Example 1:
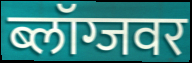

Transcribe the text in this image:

ब्लॉग्जवर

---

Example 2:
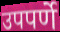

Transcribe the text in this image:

उपपर्णे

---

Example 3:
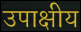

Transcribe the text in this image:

उपाक्षीय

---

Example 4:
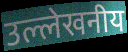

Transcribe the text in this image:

उल्लेखनीय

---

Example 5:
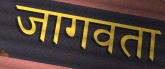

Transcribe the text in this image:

जागवता